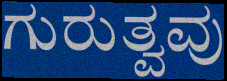
ಗುರುತ್ವವು